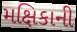
મક્ષિકાની